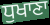
ਧੁਖਾਣਾ